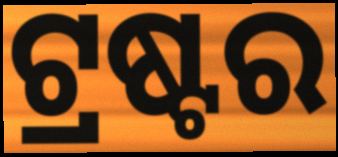
ଟ୍ରଷ୍ଟର